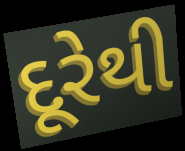
દૂરેથી